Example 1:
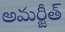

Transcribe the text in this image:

అమర్జీత్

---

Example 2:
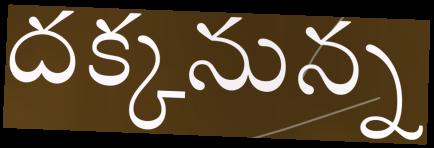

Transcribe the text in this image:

దక్కనున్న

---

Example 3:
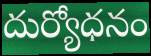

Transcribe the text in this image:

దుర్యోధనం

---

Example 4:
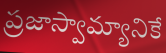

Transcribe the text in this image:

ప్రజాస్వామ్యానికే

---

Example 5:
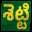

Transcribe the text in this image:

శెట్టి